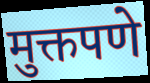
मुक्तपणे